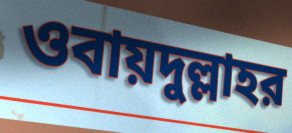
ওবায়দুল্লাহর